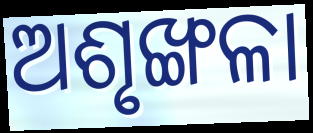
ଅଶୃଙ୍ଖଳା